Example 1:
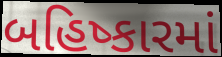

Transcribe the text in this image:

બહિષ્કારમાં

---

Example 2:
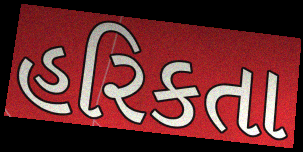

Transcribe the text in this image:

હરિકતા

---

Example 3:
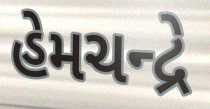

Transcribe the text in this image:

હેમચન્દ્રે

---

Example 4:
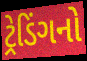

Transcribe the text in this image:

ટ્રેડિંગનો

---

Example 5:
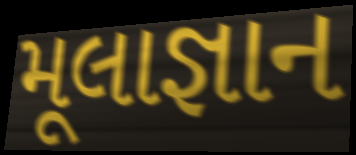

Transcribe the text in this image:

મૂલાજ્ઞાન